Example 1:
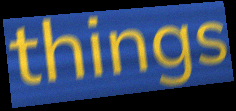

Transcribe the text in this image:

things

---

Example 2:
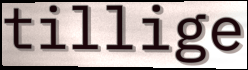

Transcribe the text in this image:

tillige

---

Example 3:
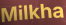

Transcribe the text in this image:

Milkha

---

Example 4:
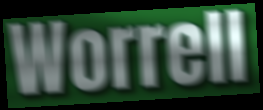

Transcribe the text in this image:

Worrell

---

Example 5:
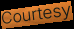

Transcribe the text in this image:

Courtesy